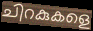
ചിറകുകളെ